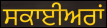
ਸਕਾਈਅਰਾਂ